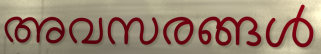
അവസരങ്ങൾ